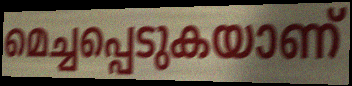
മെച്ചപ്പെടുകയാണ്